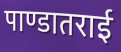
पाण्डातराई